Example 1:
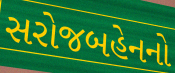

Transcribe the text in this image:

સરોજબહેનનો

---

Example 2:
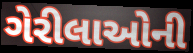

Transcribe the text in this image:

ગેરીલાઓની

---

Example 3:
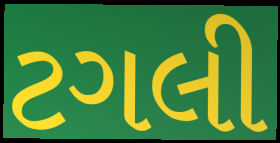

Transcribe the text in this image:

ટગલી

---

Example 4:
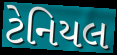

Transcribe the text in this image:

ટેનિયલ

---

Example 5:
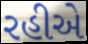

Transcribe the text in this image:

રહીએ